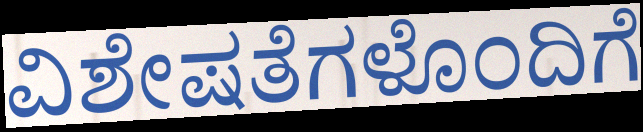
ವಿಶೇಷತೆಗಳೊಂದಿಗೆ